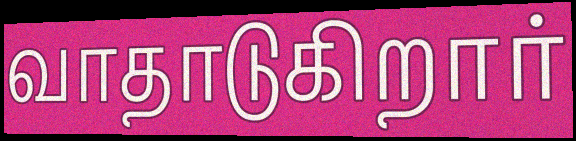
வாதாடுகிறார்